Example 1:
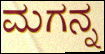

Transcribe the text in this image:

ಮಗನ್ನ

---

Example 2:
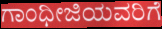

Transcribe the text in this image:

ಗಾಂಧೀಜಿಯವರಿಗೆ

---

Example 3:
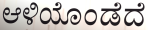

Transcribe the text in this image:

ಆಳಿಯೊಂಡೆದೆ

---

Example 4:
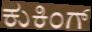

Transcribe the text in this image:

ಕುಕಿಂಗ್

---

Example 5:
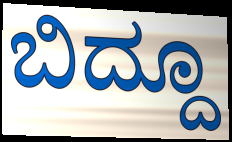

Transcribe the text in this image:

ಬಿದ್ದೂ